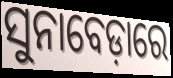
ସୁନାବେଡ଼ାରେ